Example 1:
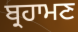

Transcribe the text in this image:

ਬ੍ਰਹਾਮਣ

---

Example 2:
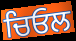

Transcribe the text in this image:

ਚਿਓਲ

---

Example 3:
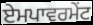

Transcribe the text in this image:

ਏਮਪਾਵਰਮੇਂਟ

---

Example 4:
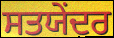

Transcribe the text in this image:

ਸਤਯੇਂਦਰ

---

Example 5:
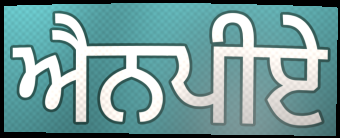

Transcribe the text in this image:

ਐਨਪੀਏ